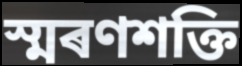
স্মৰণশক্তি